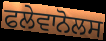
ਫਲੇਵਾਨੋਲਸ